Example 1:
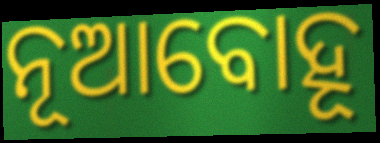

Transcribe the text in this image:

ନୂଆବୋହୂ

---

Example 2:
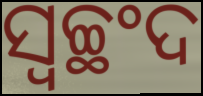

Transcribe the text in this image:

ସ୍ୱଚ୍ଛଂଦ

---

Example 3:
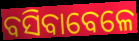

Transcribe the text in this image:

ବସିବାବେଳେ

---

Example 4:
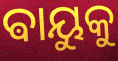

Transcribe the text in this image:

ଵାୟୁକୁ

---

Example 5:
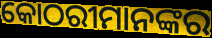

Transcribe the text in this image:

କୋଠରୀମାନଙ୍କର